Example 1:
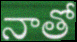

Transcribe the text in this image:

నాతో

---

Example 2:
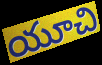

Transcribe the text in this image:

యూచి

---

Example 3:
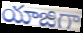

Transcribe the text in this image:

యాజిగా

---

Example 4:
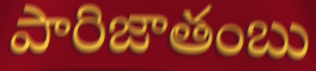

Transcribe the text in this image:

పారిజాతంబు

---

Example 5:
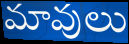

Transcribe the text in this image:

మావులు